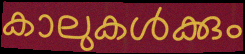
കാലുകൾക്കും